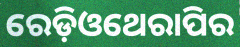
ରେଡ଼ିଓଥେରାପିର